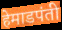
हेमाडपंती